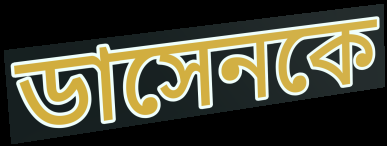
ডাসেনকে